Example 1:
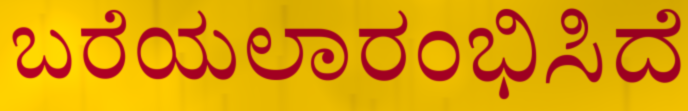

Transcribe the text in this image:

ಬರೆಯಲಾರಂಭಿಸಿದೆ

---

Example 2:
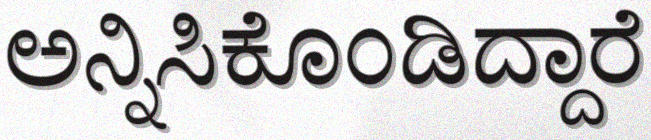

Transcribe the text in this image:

ಅನ್ನಿಸಿಕೊಂಡಿದ್ದಾರೆ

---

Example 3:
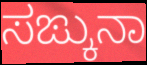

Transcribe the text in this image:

ಸಙ್ಕುನಾ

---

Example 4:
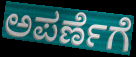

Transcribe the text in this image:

ಅಪರ್ಣೆಗೆ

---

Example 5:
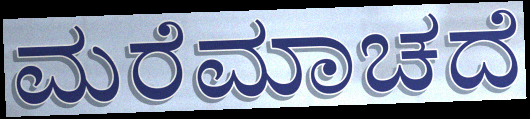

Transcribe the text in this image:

ಮರೆಮಾಚದೆ